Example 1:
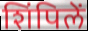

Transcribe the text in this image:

शिंपिलें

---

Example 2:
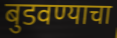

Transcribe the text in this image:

बुडवण्याचा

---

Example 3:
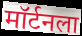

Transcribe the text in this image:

मॉर्टनला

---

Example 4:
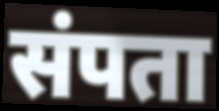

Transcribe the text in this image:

संपता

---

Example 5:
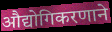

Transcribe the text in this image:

औद्योगिकरणाने